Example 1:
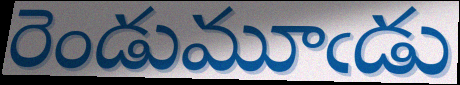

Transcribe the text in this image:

రెండుమూఁడు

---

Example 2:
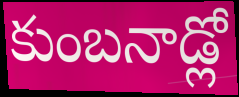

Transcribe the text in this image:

కుంబనాడ్లో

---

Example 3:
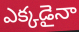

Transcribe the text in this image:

ఎక్కడైనా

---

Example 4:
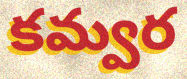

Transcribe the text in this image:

కమ్వర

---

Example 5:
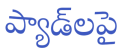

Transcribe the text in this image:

ప్యాడ్‌లపై